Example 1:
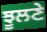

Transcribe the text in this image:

ਝੂਲਣੇ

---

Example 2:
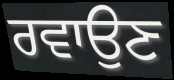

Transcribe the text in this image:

ਰਵਾਉਣ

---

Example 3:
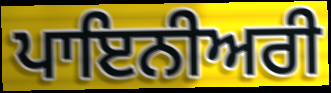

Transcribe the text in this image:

ਪਾਇਨੀਅਰੀ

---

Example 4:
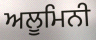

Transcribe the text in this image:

ਅਲੂਮਿਨੀ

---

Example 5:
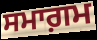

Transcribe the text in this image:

ਸਮਾਗ਼ਮ